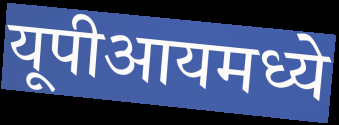
यूपीआयमध्ये